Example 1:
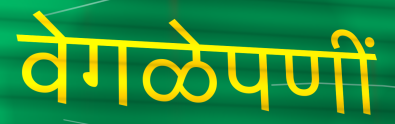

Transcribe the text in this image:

वेगळेपणीं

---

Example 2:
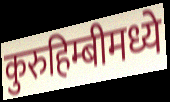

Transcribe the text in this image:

कुरुहिम्बीमध्ये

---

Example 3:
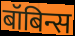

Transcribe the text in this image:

बॉबिन्स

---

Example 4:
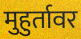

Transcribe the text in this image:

मुहुर्तावर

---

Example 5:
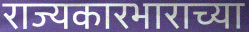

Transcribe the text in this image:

राज्यकारभाराच्या